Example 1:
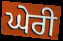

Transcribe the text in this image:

ਘੇਰੀ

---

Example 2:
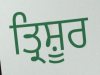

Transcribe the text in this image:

ਤ੍ਰਿਸ਼ੂਰ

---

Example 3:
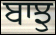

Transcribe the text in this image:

ਬਾਝੁ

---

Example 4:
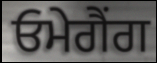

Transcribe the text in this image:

ਓਮੇਗੈਂਗ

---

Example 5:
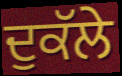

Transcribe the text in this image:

ਦੁਕੱਲੇ